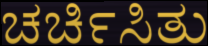
ಚರ್ಚಿಸಿತು